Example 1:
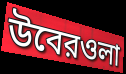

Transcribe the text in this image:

উবেরওলা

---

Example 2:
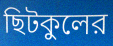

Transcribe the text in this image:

ছিটকুলের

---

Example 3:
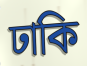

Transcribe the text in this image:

ঢাকি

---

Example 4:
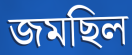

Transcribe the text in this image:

জমছিল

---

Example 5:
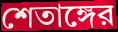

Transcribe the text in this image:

শেতাঙ্গের